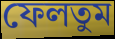
ফেলতুম